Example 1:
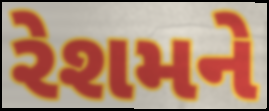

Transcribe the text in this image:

રેશમને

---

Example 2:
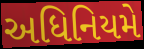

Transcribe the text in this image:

અધિનિયમે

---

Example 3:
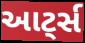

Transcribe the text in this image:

આટ્‌ર્સ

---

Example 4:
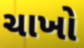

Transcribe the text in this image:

ચાખો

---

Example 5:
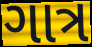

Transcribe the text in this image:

ગાત્ર